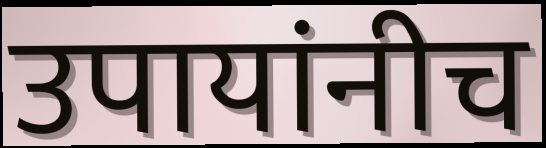
उपायांनीच